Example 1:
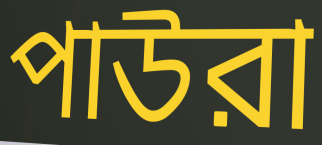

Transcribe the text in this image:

পাউরা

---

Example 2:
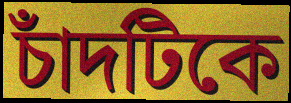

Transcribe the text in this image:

চাঁদটিকে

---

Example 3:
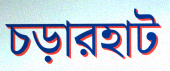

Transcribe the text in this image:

চড়ারহাট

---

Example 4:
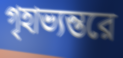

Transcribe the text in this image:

গৃহাভ্যন্তরে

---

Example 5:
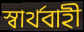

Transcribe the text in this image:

স্বার্থবাহী